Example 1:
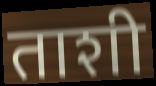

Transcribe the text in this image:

ताशी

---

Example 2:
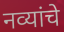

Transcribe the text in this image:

नव्यांचे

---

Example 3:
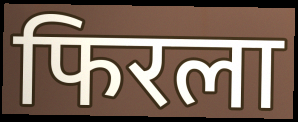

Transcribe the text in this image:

फिरला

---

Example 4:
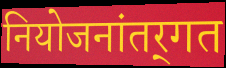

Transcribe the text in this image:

नियोजनांतर्गत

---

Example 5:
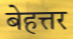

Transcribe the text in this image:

बेहत्तर